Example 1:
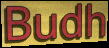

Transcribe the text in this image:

Budh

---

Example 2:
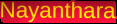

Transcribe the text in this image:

Nayanthara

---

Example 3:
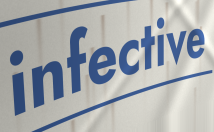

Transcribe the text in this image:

infective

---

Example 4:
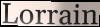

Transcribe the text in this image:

Lorrain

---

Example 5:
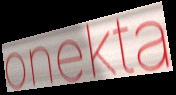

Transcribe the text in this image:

onekta